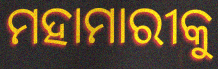
ମହାମାରୀକୁ